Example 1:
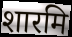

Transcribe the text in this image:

शारमि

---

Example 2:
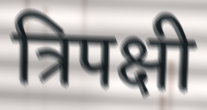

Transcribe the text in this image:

त्रिपक्षी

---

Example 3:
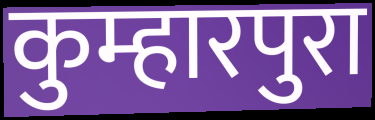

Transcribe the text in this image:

कुम्हारपुरा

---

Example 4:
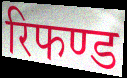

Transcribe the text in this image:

रिफण्ड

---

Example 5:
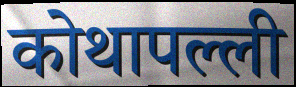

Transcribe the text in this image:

कोथापल्ली